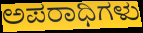
ಅಪರಾಧಿಗಳು